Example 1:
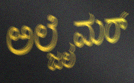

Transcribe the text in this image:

ಅಲ್ಜೈಮರ್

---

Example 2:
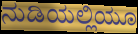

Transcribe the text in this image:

ನುಡಿಯಲ್ಲಿಯೂ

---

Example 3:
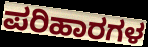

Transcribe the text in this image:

ಪರಿಹಾರಗಳ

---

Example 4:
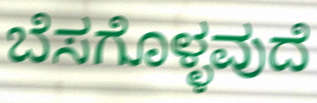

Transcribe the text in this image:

ಬೆಸಗೊಳ್ಳವುದೆ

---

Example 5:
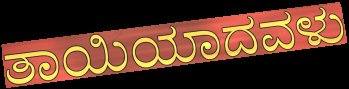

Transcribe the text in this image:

ತಾಯಿಯಾದವಳು